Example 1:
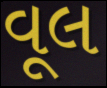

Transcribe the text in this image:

વૂલ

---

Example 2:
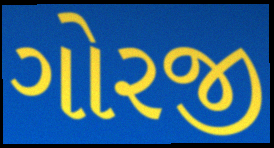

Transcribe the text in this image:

ગોરજી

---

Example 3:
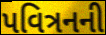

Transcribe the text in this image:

પવિત્રનની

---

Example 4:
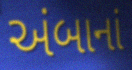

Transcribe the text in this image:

અંબાનાં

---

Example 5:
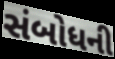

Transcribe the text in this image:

સંબોધની